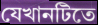
যেখানটিতে